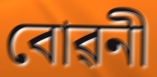
বোৱনী